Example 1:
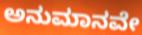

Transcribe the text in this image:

ಅನುಮಾನವೇ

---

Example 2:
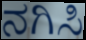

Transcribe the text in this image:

ನಗಿಸಿ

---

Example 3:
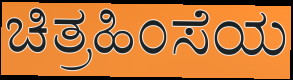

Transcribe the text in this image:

ಚಿತ್ರಹಿಂಸೆಯ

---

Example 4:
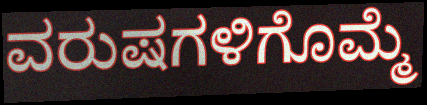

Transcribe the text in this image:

ವರುಷಗಳಿಗೊಮ್ಮೆ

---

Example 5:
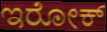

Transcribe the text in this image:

ಇರೋಕ್